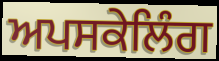
ਅਪਸਕੇਲਿੰਗ